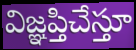
విజ్ఞప్తిచేస్తూ